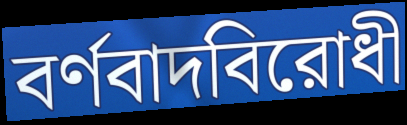
বর্ণবাদবিরোধী